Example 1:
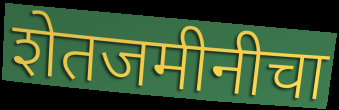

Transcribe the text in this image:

शेतजमीनीचा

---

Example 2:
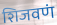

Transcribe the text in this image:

शिजवणं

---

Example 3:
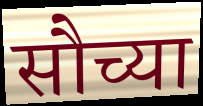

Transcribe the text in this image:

सौच्या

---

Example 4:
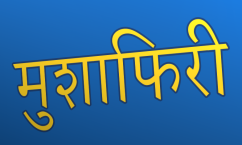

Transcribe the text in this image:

मुशाफिरी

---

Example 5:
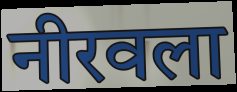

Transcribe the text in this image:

नीरवला